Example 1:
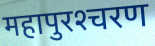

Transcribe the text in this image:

महापुरश्चरण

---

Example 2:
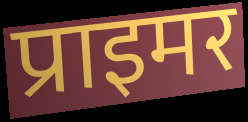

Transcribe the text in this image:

प्राइमर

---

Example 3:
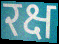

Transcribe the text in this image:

रक्ष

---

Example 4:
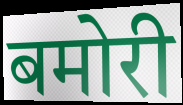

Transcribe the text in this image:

बमोरी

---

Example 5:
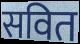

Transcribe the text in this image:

सवित